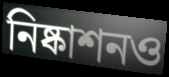
নিষ্কাশনও